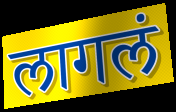
लागलं